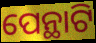
ପେନ୍ଥାଟି